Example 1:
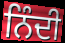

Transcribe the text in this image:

ਨਿੰਦੀ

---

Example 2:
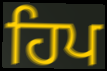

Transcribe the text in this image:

ਹਿਪ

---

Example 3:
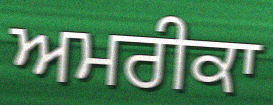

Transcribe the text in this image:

ਅਮਰੀਕਾ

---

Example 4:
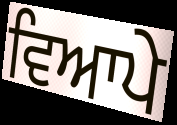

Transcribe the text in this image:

ਵਿਆਪੇ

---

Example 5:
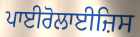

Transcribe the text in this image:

ਪਾਈਰੋਲਾਈਜ਼ਿਸ